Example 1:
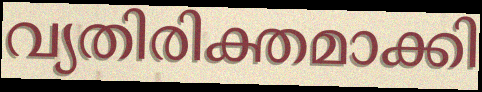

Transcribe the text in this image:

വ്യതിരിക്തമാക്കി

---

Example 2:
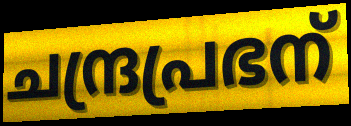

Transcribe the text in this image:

ചന്ദ്രപ്രഭന്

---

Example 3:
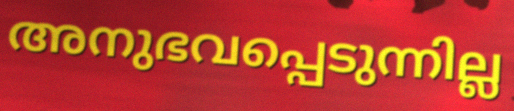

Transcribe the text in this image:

അനുഭവപ്പെടുന്നില്ല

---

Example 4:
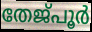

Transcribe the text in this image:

തേജ്പൂർ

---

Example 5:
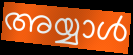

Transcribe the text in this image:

അയ്യാൾ